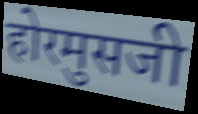
होरमुसजी